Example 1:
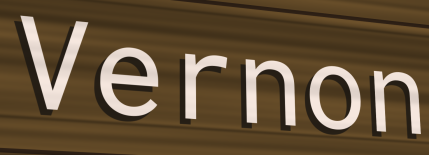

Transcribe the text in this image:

Vernon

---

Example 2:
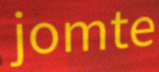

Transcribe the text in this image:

jomte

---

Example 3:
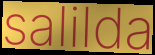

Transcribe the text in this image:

salilda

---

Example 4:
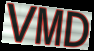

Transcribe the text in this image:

VMD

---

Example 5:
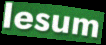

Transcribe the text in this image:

Iesum